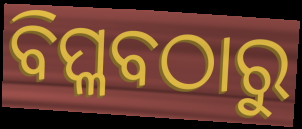
ବିପ୍ଳବଠାରୁ